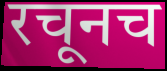
रचूनच